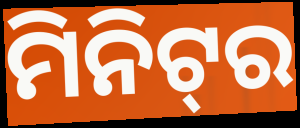
ମିନିଟ୍‌ର